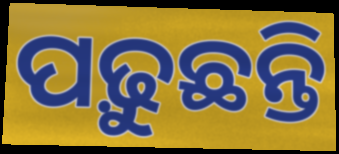
ପଢ଼ୁଛନ୍ତି